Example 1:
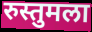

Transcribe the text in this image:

रुस्तुमला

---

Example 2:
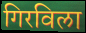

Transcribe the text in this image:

गिरविला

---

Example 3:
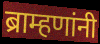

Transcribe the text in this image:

ब्राम्हणांनी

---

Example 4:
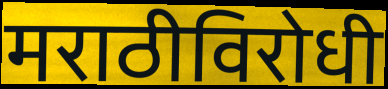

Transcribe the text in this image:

मराठीविरोधी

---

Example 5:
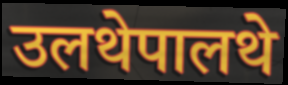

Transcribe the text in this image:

उलथेपालथे